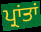
ਪ੍ਰਾਂਤਾਂ